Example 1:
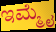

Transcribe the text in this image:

ಇಮ್ಮೈ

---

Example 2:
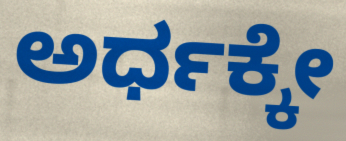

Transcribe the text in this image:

ಅರ್ಧಕ್ಕೇ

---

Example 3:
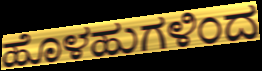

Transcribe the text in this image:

ಹೊಳಹುಗಳಿಂದ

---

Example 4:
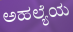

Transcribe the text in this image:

ಅಹಲ್ಯೆಯ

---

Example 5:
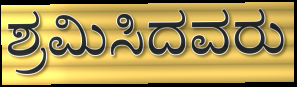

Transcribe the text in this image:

ಶ್ರಮಿಸಿದವರು